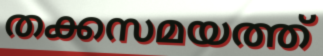
തക്കസമയത്ത്